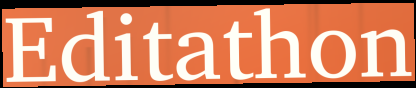
Editathon